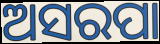
ଅସରପା